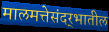
मालमत्तेसंदर्भातील